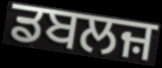
ਡਬਲਜ਼